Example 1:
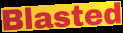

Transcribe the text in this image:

Blasted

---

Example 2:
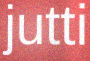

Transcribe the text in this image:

jutti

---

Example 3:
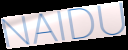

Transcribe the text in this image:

NAIDU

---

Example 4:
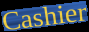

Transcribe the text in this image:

Cashier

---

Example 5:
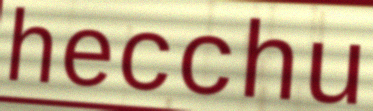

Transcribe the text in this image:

hecchu